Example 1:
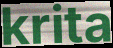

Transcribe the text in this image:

krita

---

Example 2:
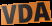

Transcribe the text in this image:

VDA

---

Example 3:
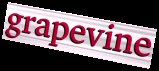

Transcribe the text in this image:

grapevine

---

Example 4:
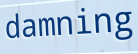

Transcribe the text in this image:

damning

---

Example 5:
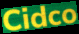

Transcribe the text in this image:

Cidco